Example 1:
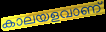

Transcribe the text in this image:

കാലയളവാണ്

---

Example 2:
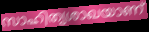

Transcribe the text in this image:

സാഹിത്യശാഖയാണ്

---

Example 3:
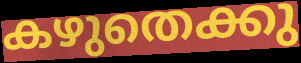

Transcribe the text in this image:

കഴുതെക്കു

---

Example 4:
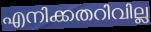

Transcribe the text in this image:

എനിക്കതറിവില്ല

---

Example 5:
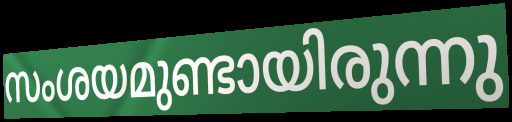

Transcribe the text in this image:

സംശയമുണ്ടായിരുന്നു